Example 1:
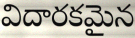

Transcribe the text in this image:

విదారకమైన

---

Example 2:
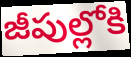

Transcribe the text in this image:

జీపుల్లోకి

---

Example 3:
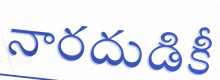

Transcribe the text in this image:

నారదుడికీ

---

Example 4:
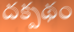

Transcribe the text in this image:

దక్పథం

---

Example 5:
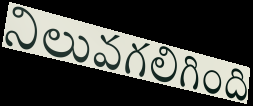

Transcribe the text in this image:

నిలువగలిగింది